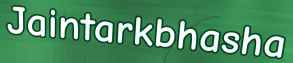
Jaintarkbhasha